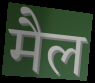
मैल